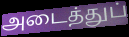
அடைத்துப்